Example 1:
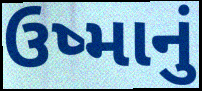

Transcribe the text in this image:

ઉષ્માનું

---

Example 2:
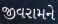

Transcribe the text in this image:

જીવરામને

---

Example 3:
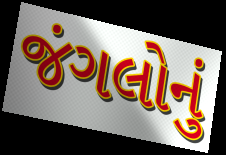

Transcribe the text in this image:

જંગલોનું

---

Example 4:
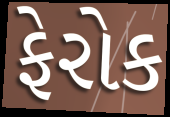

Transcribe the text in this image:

ફેરોક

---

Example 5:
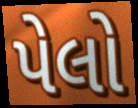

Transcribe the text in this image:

પેલો